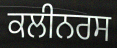
ਕਲੀਨਰਸ